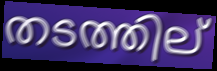
തടത്തില്